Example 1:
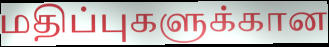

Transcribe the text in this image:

மதிப்புகளுக்கான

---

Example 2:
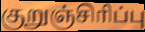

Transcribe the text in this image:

குறுஞ்சிரிப்பு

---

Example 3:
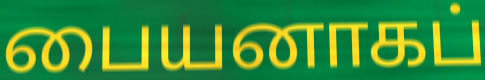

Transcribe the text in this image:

பையனாகப்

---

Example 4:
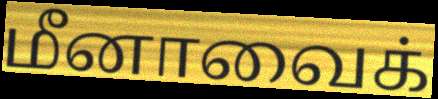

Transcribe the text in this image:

மீனாவைக்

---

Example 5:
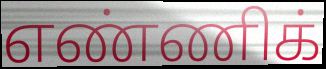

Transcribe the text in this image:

எண்ணிக்